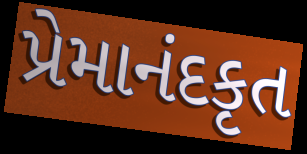
પ્રેમાનંદકૃત